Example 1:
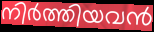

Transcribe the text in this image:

നിർത്തിയവൻ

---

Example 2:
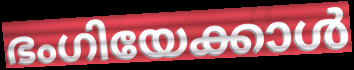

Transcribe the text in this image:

ഭംഗിയേക്കാൾ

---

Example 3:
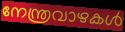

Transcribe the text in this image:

നേന്ത്രവാഴകൾ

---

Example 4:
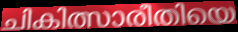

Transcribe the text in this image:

ചികിത്സാരീതിയെ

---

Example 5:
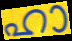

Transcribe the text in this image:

ഹാ